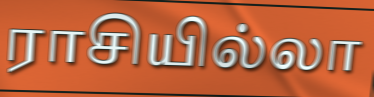
ராசியில்லா